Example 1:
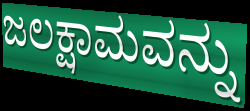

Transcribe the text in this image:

ಜಲಕ್ಷಾಮವನ್ನು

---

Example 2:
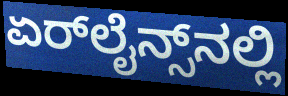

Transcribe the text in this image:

ಏರ್‌ಲೈನ್ಸ್‌ನಲ್ಲಿ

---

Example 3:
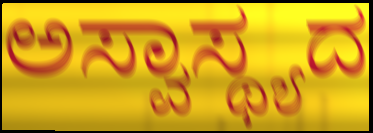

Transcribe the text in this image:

ಅಸ್ವಾಸ್ಥ್ಯದ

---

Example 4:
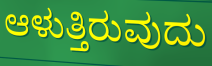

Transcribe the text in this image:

ಆಳುತ್ತಿರುವುದು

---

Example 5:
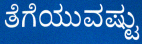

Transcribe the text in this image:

ತೆಗೆಯುವಷ್ಟು